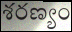
శరణ్యం